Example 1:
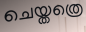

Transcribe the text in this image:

ചെയ്തത്രെ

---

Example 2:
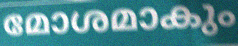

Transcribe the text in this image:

മോശമാകും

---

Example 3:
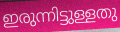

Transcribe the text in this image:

ഇരുന്നിട്ടുള്ളതു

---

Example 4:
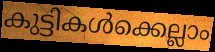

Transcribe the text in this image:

കുട്ടികൾക്കെല്ലാം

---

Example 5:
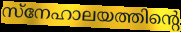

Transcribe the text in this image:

സ്നേഹാലയത്തിന്റെ